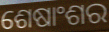
ଶେଷାଂଶର